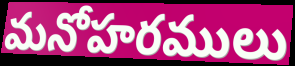
మనోహరములు